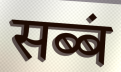
सब्बं